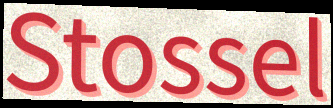
Stossel